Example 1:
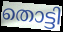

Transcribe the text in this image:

തൊട്ടി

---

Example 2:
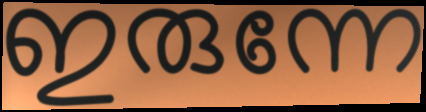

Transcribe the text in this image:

ഇരുന്നേ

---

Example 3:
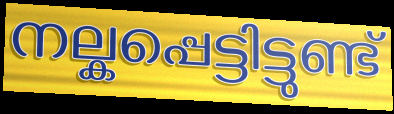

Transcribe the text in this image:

നല്കപ്പെട്ടിട്ടുണ്ട്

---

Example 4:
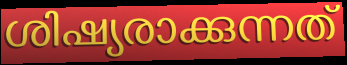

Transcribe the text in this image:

ശിഷ്യരാക്കുന്നത്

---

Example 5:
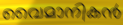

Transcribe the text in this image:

വൈമാനികൻ